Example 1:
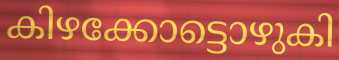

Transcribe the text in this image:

കിഴക്കോട്ടൊഴുകി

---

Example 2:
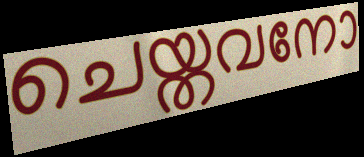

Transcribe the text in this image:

ചെയ്തവനോ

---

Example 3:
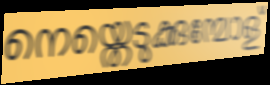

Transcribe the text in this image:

നെയ്തെടുക്കുമ്പോള്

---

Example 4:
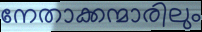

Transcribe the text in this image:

നേതാക്കന്മാരിലും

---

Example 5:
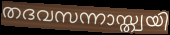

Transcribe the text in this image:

തദവസന്നാസ്ത്വയി